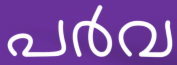
പർവ